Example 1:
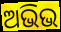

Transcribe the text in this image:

ଅଭିଭ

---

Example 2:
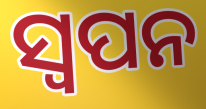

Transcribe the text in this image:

ସ୍ବପନ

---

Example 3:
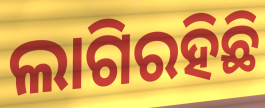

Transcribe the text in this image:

ଲାଗିରହିଛି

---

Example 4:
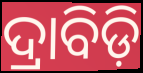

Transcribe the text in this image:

ଦ୍ରାବିଡ଼ି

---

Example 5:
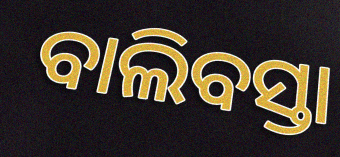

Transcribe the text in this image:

ବାଲିବସ୍ତା